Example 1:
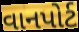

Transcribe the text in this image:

વાનપોર્ટ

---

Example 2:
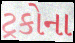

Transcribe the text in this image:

ટ્રકોના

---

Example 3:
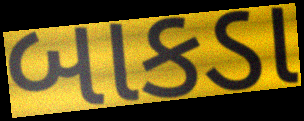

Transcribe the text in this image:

બાકડા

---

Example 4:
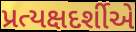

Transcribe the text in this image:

પ્રત્યક્ષદર્શીએ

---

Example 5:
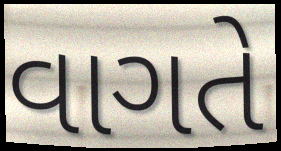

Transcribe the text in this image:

વાગતે